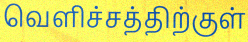
வெளிச்சத்திற்குள்